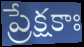
ప్రేక్షకాః